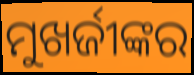
ମୁଖର୍ଜୀଙ୍କର